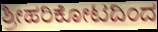
ಶ್ರೀಹರಿಕೋಟದಿಂದ